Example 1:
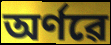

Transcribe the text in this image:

অৰ্ণৱে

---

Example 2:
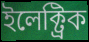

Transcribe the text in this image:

ইলেক্ট্ৰিক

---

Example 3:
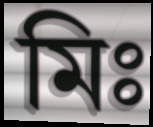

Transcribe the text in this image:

মিঃ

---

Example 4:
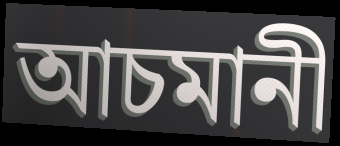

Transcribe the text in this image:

আচমানী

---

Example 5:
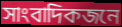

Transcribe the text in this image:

সাংবাদিকজনে